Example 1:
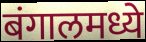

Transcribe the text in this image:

बंगालमध्ये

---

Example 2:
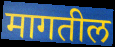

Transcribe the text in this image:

मागतील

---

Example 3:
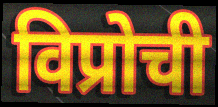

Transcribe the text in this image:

विप्रोची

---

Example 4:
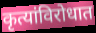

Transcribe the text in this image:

कृत्यांविरोधात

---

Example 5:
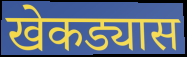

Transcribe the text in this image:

खेकड्यास